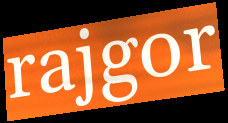
rajgor